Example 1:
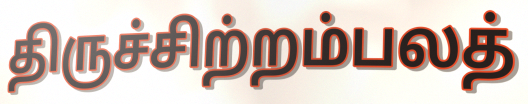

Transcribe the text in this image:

திருச்சிற்றம்பலத்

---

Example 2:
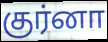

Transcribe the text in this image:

குர்னா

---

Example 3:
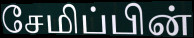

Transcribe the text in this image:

சேமிப்பின்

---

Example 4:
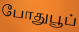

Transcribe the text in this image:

போதுபூப்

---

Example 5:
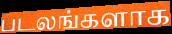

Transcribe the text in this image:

படலங்களாக